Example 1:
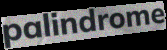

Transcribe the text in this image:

palindrome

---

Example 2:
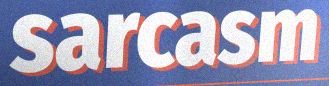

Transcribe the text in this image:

sarcasm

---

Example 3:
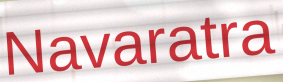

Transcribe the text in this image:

Navaratra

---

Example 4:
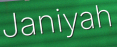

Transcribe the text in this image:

Janiyah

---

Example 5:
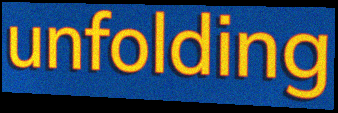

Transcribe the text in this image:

unfolding